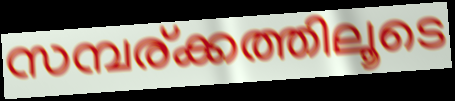
സമ്പര്ക്കത്തിലൂടെ